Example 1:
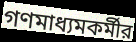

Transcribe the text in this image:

গণমাধ্যমকর্মীর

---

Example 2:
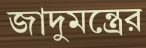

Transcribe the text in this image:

জাদুমন্ত্রের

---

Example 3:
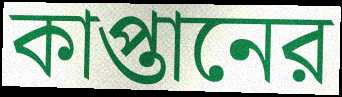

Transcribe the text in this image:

কাপ্তানের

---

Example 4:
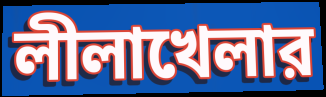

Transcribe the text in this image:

লীলাখেলার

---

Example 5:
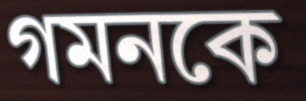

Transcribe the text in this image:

গমনকে